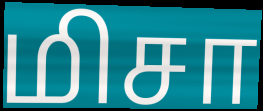
மிசா